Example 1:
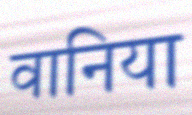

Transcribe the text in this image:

वानिया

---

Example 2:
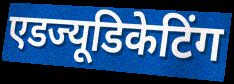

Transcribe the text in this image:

एडज्यूडिकेटिंग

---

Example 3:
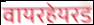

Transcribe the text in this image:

वायरहेयरड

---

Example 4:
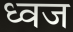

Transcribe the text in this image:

ध्वज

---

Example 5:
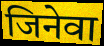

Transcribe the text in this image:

जिनेवा